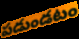
పడుండటం